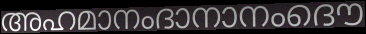
അഹമാനംദാനാനംദൌ